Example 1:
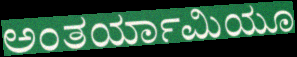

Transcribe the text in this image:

ಅಂತರ್ಯಾಮಿಯೂ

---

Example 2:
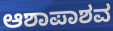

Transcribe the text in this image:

ಆಶಾಪಾಶವ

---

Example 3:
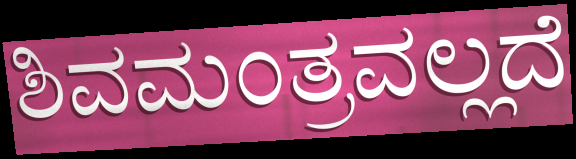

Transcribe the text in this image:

ಶಿವಮಂತ್ರವಲ್ಲದೆ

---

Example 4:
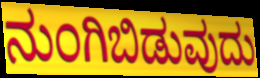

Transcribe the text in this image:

ನುಂಗಿಬಿಡುವುದು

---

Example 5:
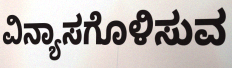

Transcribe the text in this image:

ವಿನ್ಯಾಸಗೊಳಿಸುವ